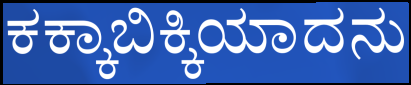
ಕಕ್ಕಾಬಿಕ್ಕಿಯಾದನು